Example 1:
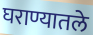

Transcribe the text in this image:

घराण्यातले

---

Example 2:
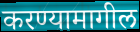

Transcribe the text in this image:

करण्यामागील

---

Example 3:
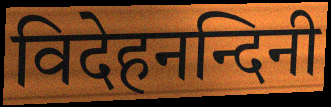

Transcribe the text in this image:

विदेहनन्दिनी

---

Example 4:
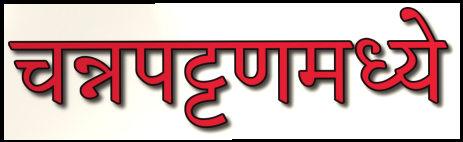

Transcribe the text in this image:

चन्नपट्टणमध्ये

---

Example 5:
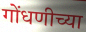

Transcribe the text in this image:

गोंधणीच्या